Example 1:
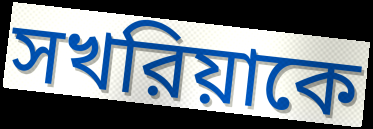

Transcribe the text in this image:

সখরিয়াকে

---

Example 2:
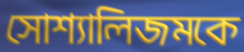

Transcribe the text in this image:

সোশ্যালিজমকে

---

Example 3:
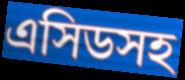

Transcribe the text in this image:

এসিডসহ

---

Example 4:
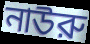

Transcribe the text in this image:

নাউরু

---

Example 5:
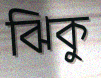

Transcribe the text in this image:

ঝিকু